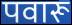
पवारू